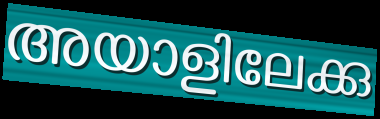
അയാളിലേക്കു